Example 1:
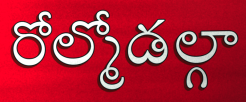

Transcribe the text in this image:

రోల్మోడల్గా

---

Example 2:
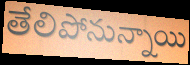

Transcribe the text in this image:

తేలిపోనున్నాయి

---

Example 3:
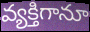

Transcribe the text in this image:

వ్యక్తిగానూ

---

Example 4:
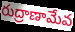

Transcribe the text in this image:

రుద్రాణామేవ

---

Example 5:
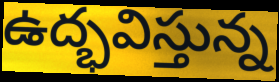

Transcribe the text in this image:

ఉద్భవిస్తున్న